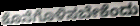
ಕೊನೆಗೊಳಿಸಬೇಕೆಂದು